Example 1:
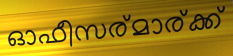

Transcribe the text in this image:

ഓഫീസര്മാര്ക്ക്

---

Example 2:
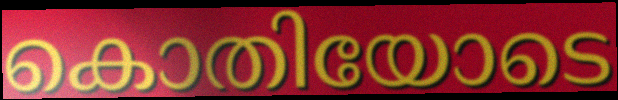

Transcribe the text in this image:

കൊതിയോടെ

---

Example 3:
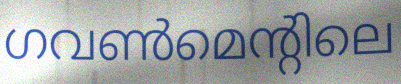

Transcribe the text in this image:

ഗവൺമെന്റിലെ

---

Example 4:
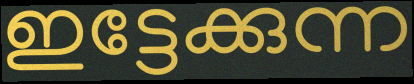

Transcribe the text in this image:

ഇട്ടേക്കുന്ന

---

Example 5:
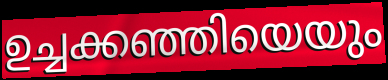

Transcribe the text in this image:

ഉച്ചക്കഞ്ഞിയെയും